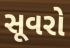
સૂવરો